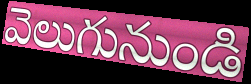
వెలుగునుండి